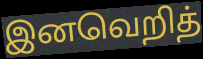
இனவெறித்